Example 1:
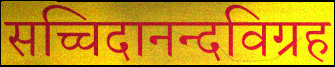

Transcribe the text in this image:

सच्चिदानन्दविग्रह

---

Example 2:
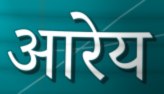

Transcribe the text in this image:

आरेय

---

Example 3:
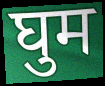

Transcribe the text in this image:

घुम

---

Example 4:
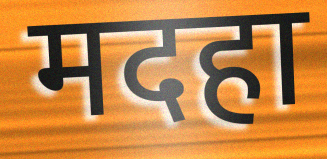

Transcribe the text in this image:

मदहा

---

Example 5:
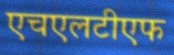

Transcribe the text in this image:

एचएलटीएफ